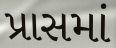
પ્રાસમાં